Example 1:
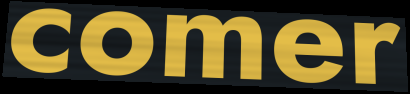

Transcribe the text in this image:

comer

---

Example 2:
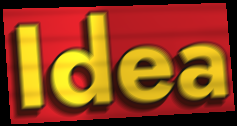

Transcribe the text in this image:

Idea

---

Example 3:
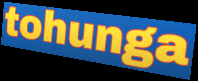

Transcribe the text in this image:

tohunga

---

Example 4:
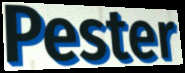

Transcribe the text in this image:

Pester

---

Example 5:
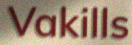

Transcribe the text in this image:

Vakills